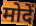
मोदें